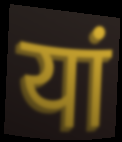
यां